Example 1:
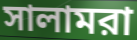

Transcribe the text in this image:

সালামরা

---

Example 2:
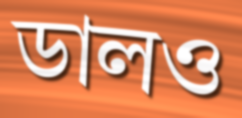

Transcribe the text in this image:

ডালও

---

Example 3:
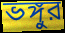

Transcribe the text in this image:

ভঙ্গুর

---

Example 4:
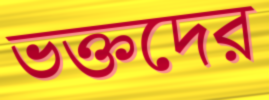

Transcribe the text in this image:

ভক্তদের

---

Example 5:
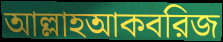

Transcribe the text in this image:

আল্লাহআকবরিজ